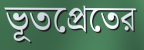
ভূতপ্রেতের